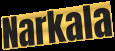
Narkala